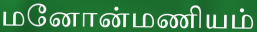
மனோன்மணியம்